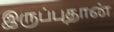
இருப்புதான்